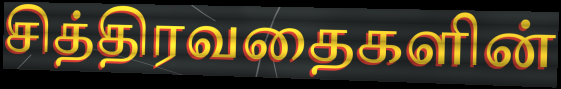
சித்திரவதைகளின்